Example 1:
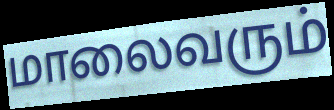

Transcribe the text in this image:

மாலைவரும்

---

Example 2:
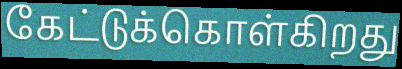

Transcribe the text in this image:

கேட்டுக்கொள்கிறது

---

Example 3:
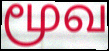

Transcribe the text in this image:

மூவ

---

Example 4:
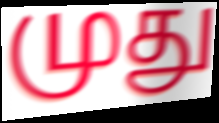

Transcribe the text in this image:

முது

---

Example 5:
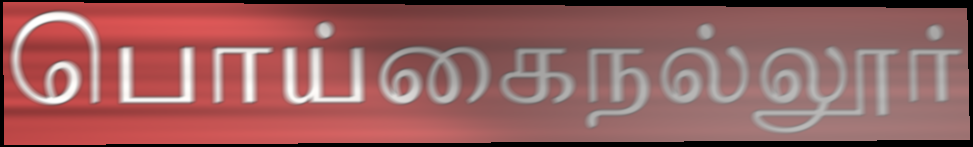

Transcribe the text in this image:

பொய்கைநல்லூர்